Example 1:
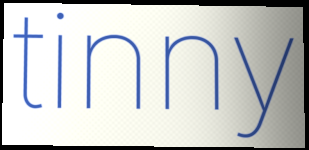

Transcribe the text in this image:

tinny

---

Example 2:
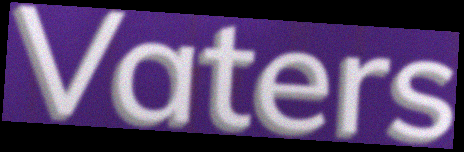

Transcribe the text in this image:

Vaters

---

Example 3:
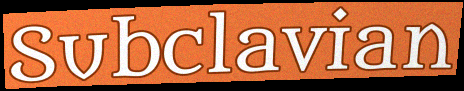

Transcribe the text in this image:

Subclavian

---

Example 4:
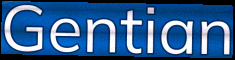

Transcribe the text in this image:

Gentian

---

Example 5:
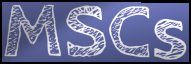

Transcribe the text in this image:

MSCs